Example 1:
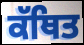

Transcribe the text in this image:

ਕੱਥਿਤ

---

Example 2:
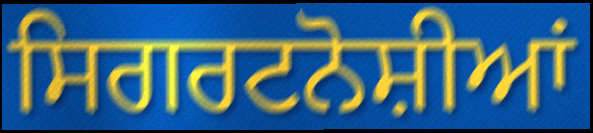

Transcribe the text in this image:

ਸਿਗਰਟਨੋਸ਼ੀਆਂ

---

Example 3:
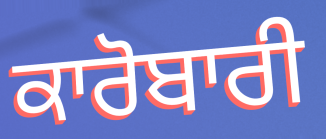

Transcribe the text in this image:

ਕਾਰੋਬਾਰੀ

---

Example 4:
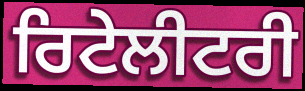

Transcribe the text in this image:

ਰਿਟੇਲੀਟਰੀ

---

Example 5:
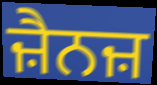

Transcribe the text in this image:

ਜ਼ੈਨਜ਼